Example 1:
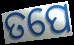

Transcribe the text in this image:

ତପେ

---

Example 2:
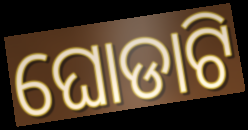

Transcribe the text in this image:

ଘୋଡାଟି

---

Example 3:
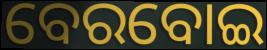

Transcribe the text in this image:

ବେରବୋଇ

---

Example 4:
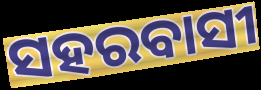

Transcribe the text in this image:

ସହରବାସୀ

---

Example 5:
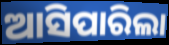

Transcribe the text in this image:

ଆସିପାରିଲା